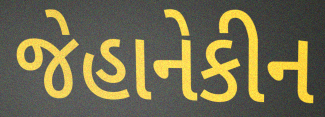
જેહાનેકીન